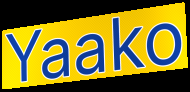
Yaako